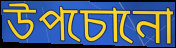
উপচোনো